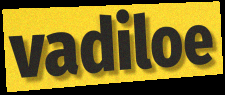
vadiloe